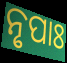
ନୃପାଃ